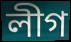
লীগ